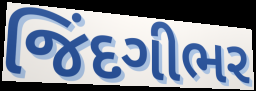
જિંદગીભર